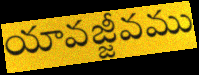
యావజ్జీవము